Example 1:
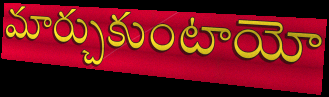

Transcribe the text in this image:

మార్చుకుంటాయో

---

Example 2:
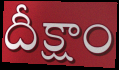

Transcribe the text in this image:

దీక్షాం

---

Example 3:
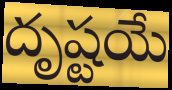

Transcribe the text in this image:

దృష్టయే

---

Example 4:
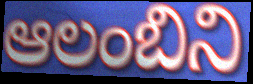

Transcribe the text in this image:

ఆలంబిని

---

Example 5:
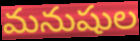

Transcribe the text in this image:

మనుషుల